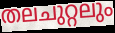
തലചുറ്റലും